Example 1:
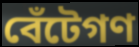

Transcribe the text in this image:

বেঁটেগণ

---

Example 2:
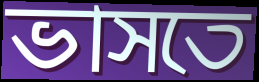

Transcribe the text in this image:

ভাসতে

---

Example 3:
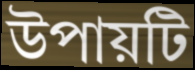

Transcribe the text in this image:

উপায়টি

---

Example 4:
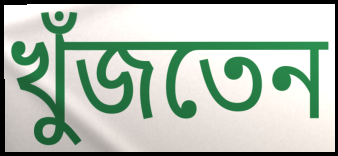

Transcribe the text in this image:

খুঁজতেন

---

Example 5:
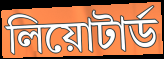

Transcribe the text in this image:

লিয়োটার্ড